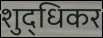
शुद्धिकर